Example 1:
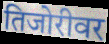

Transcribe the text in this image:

तिजोरीवर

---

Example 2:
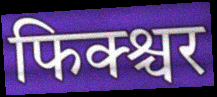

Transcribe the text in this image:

फिक्श्चर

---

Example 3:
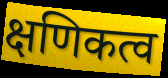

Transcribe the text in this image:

क्षणिकत्व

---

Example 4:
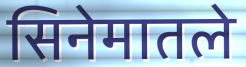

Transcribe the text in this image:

सिनेमातले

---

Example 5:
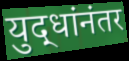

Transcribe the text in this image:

युद्धांनंतर